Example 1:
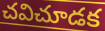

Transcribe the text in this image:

చవిచూడక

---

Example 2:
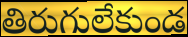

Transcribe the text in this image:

తిరుగులేకుండ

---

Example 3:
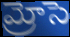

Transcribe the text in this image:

మ్రోసె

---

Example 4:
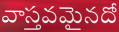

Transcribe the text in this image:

వాస్తవమైనదో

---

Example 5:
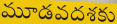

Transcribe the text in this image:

మూడవదశకు